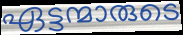
ഏട്ടന്മാരുടെ